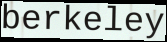
berkeley